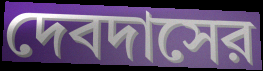
দেবদাসের